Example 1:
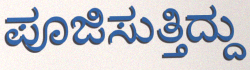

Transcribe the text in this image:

ಪೂಜಿಸುತ್ತಿದ್ದು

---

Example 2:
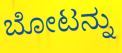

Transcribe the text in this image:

ಬೋಟನ್ನು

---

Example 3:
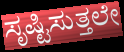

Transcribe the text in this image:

ಸೃಷ್ಟಿಸುತ್ತಲೇ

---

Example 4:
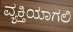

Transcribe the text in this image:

ವ್ಯಕ್ತಿಯಾಗಲಿ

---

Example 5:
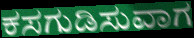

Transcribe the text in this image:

ಕಸಗುಡಿಸುವಾಗ